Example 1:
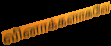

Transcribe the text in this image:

வினாக்களாகவே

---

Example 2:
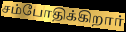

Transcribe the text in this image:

சம்போதிக்கிறார்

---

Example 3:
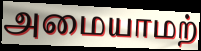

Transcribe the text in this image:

அமையாமற்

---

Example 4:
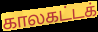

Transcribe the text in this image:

காலகட்டக்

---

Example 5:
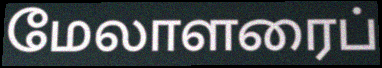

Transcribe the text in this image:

மேலாளரைப்